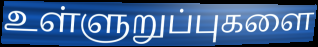
உள்ளுறுப்புகளை